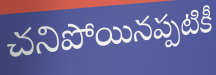
చనిపోయినప్పటికీ